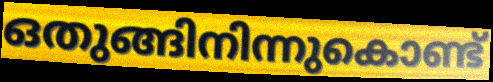
ഒതുങ്ങിനിന്നുകൊണ്ട്